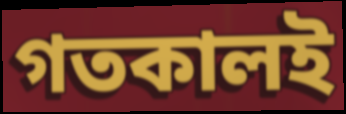
গতকালই